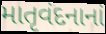
માતૃવંદનાનાં